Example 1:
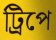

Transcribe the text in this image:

ট্রিপে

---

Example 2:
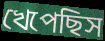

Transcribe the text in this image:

খেপেছিস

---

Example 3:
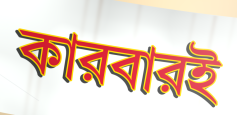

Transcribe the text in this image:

কারবারই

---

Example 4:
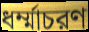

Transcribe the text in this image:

ধর্ম্মাচরণ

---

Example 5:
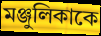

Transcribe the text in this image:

মঞ্জুলিকাকে